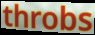
throbs